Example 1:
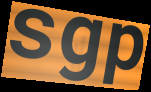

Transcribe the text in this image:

sgp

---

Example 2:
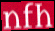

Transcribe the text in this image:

nfh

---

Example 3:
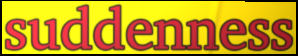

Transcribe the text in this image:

suddenness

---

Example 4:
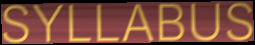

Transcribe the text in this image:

SYLLABUS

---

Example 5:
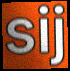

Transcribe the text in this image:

sij